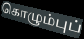
கொழும்புப்